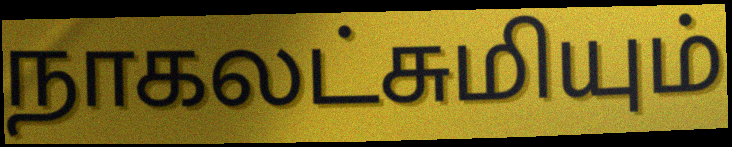
நாகலட்சுமியும்